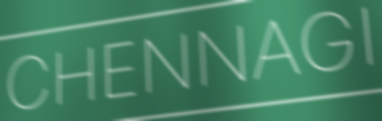
CHENNAGI